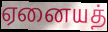
ஏனையத்